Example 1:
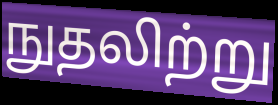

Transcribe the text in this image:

நுதலிற்று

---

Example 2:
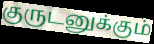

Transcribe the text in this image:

குருடனுக்கும்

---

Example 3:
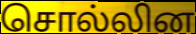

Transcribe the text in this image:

சொல்லின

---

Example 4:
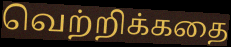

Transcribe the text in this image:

வெற்றிக்கதை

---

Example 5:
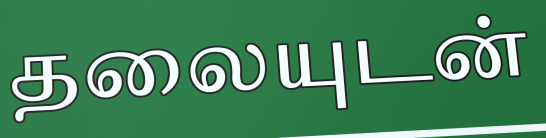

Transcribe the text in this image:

தலையுடன்